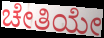
ಚೇತಿಯೇ